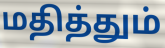
மதித்தும்